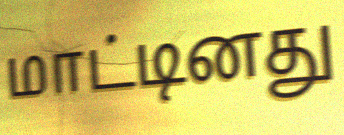
மாட்டினது